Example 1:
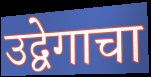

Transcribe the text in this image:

उद्वेगाचा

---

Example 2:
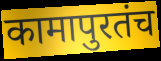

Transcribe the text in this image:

कामापुरतंच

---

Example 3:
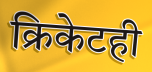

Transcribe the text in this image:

क्रिकेटही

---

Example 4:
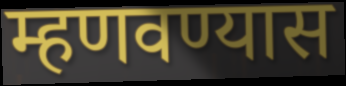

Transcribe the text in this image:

म्हणवण्यास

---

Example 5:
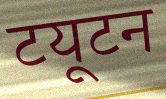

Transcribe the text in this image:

टयूटन